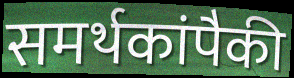
समर्थकांपैकी